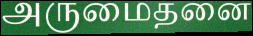
அருமைதனை